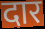
दार